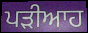
ਪੜੀਆਹ